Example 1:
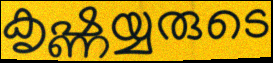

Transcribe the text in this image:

കൃഷ്ണയ്യരുടെ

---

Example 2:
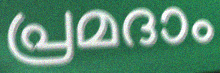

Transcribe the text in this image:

പ്രമദാം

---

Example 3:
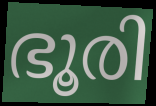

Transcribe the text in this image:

ഭൂരി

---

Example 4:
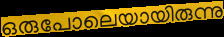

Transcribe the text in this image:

ഒരുപോലെയായിരുന്നു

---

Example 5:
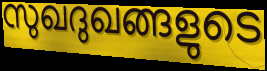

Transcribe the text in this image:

സുഖദുഖങ്ങളുടെ